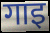
गाइ